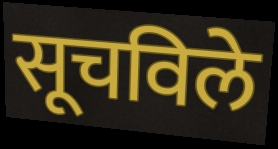
सूचविले